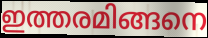
ഇത്തരമിങ്ങനെ